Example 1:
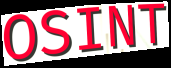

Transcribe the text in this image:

OSINT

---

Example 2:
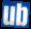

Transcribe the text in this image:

ub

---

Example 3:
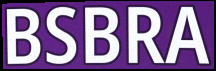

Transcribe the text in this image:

BSBRA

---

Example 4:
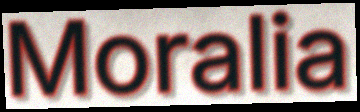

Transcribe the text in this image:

Moralia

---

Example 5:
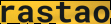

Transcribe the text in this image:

rastao